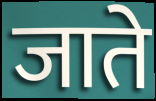
जाते